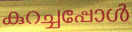
കുറച്ചപ്പോൾ